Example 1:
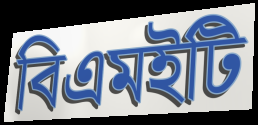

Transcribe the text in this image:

বিএমইটি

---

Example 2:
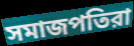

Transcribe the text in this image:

সমাজপতিরা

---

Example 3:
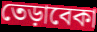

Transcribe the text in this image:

তেড়াবেকা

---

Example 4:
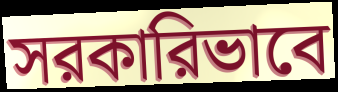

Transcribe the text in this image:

সরকারিভাবে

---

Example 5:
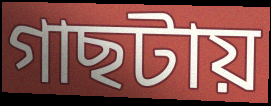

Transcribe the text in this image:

গাছটায়